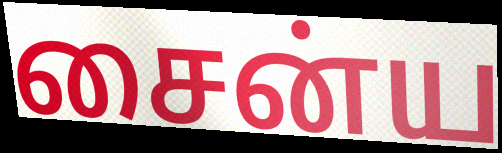
சைன்ய